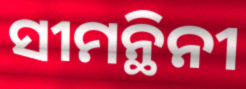
ସୀମନ୍ଥିନୀ